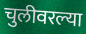
चुलीवरल्या